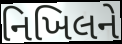
નિખિલને